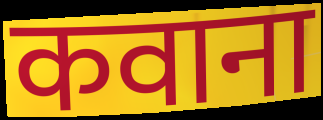
कवाना